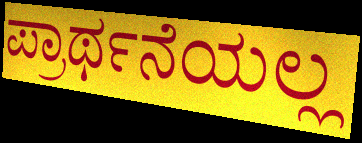
ಪ್ರಾರ್ಥನೆಯಲ್ಲ